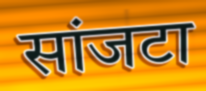
सांजटा